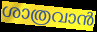
ശാത്രവാൻ